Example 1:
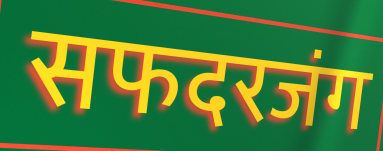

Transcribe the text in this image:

सफदरजंग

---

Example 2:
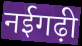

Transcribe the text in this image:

नईगढ़ी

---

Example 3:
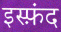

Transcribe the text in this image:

इस्फ़ंद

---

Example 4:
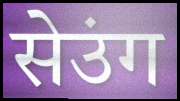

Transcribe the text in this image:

सेउंग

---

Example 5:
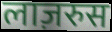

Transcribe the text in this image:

लाज़रुस